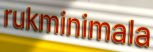
rukminimala